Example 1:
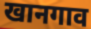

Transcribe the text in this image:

खानगाव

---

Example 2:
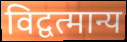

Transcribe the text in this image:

विद्वत्मान्य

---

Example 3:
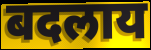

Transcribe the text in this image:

बदलाय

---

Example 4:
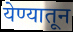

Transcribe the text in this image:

येण्यातून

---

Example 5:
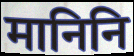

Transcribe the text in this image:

मानिनि